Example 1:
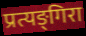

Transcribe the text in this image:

प्रत्यङ्गिरा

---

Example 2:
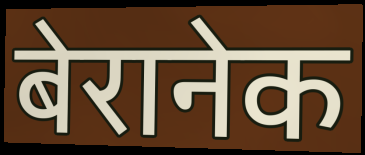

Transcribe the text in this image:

बेरानेक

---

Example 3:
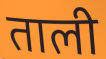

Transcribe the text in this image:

ताली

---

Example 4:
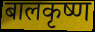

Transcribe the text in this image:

बालकृष्ण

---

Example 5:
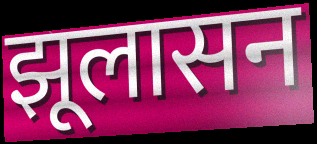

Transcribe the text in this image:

झूलासन